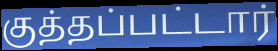
குத்தப்பட்டார்